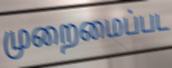
முறைமைப்பட